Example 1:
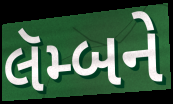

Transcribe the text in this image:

લૅમ્બને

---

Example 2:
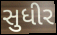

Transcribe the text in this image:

સુધીર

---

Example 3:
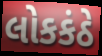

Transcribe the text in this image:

લોકકંઠે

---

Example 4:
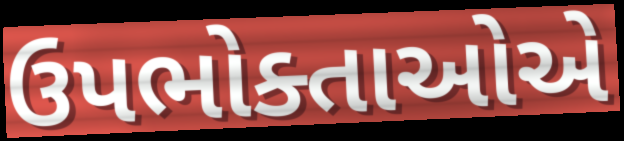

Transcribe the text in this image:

ઉપભોક્તાઓએ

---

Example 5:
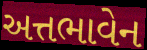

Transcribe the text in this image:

અત્તભાવેન